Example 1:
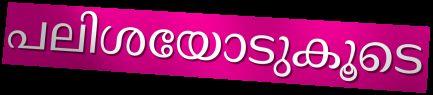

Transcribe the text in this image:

പലിശയോടുകൂടെ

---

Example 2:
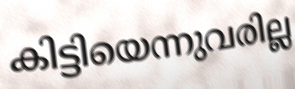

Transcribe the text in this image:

കിട്ടിയെന്നുവരില്ല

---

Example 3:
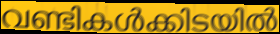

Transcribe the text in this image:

വണ്ടികൾക്കിടയിൽ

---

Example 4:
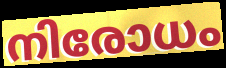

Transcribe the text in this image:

നിരോധം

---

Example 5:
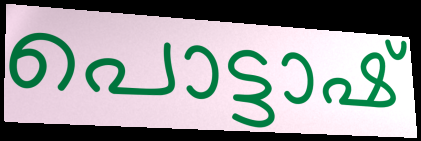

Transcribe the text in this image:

പൊട്ടാഷ്